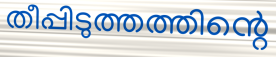
തീപ്പിടുത്തത്തിന്റെ